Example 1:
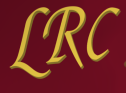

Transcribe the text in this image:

LRC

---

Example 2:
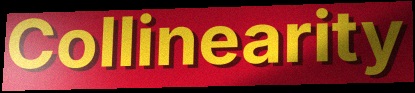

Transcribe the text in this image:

Collinearity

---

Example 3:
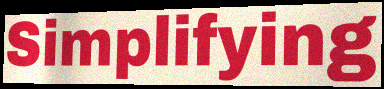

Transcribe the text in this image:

Simplifying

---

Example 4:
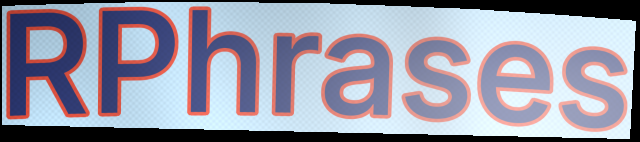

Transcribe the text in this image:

RPhrases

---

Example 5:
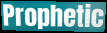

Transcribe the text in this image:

Prophetic